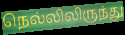
நெல்லிலிருந்து